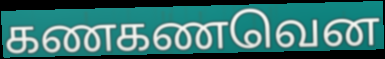
கணகணவென